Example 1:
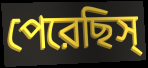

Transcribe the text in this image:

পেরেছিস্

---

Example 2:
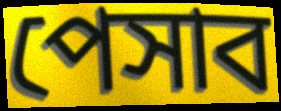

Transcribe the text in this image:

পেসাব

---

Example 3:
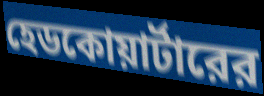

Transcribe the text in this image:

হেডকোয়ার্টারের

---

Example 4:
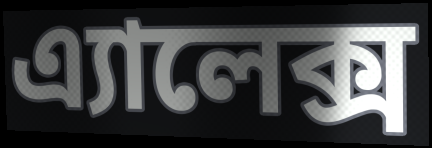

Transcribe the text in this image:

এ্যালেক্স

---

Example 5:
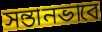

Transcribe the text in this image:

সন্তানভাবে